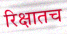
रिक्षातच